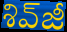
శివ్‌జీ